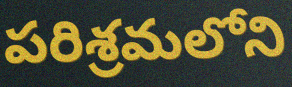
పరిశ్రమలోని